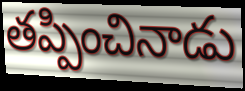
తప్పించినాడు